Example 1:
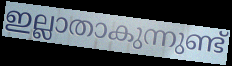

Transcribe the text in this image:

ഇല്ലാതാകുന്നുണ്ട്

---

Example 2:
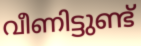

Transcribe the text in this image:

വീണിട്ടുണ്ട്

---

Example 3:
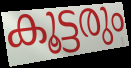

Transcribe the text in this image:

കൂട്ടരും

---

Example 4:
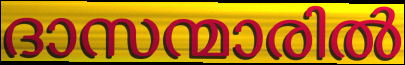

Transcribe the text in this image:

ദാസന്മാരിൽ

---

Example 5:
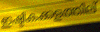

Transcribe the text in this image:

ഇഷ്ടികക്കളത്തില്